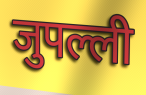
जुपल्ली